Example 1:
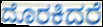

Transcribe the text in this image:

ದೊರಕಿದರೆ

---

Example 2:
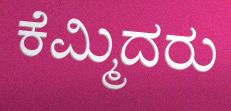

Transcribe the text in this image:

ಕೆಮ್ಮಿದರು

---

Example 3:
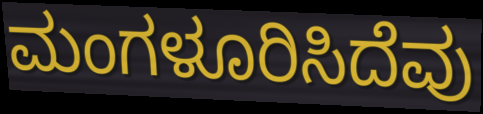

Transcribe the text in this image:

ಮಂಗಳೂರಿಸಿದೆವು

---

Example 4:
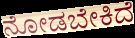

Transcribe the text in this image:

ನೋಡಬೇಕಿದೆ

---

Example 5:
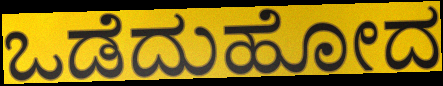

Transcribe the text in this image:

ಒಡೆದುಹೋದ